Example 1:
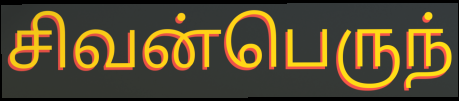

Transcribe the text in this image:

சிவன்பெருந்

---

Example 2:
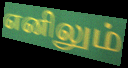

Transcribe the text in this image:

எனிலும்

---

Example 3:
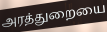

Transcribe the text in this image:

அரத்துறையை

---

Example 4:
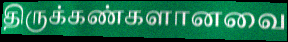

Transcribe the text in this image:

திருக்கண்களானவை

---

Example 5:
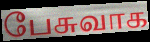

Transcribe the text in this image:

பேசுவாக